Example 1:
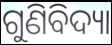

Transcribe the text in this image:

ଗୁଣିବିଦ୍ୟା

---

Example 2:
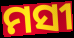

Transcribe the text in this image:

ମସୀ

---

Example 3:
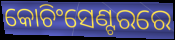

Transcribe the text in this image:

କୋଚିଂସେଣ୍ଟରରେ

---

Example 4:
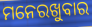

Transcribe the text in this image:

ମନେରଖୁବାର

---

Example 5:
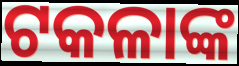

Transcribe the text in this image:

ଟକଳାଙ୍କ